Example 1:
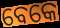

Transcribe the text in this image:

ବେକେ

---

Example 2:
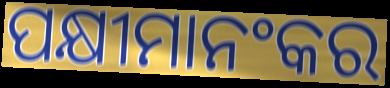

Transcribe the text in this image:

ପକ୍ଷୀମାନଂକର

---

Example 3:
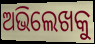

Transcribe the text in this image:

ଅଭିଲେଖକୁ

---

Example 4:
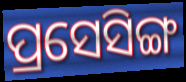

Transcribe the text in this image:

ପ୍ରସେସିଙ୍ଗ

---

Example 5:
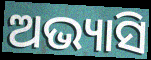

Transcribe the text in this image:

ଅଭ୍ୟାସି